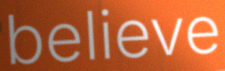
believe